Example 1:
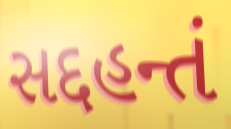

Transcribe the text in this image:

સદ્દહન્તં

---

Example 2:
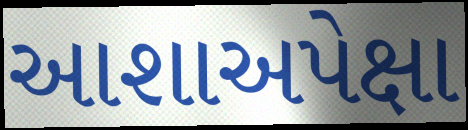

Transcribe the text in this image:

આશાઅપેક્ષા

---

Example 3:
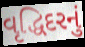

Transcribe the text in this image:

વૃદ્ધિદરનું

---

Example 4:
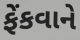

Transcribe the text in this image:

ફેંકવાને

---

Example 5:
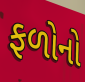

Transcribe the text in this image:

ફળોનો